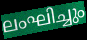
ലംഘിച്ചും